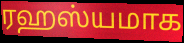
ரஹஸ்யமாக